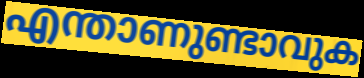
എന്താണുണ്ടാവുക